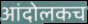
आंदोलकच